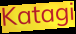
Katagi